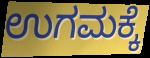
ಉಗಮಕ್ಕೆ